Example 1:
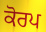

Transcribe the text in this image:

ਕੋਰਪ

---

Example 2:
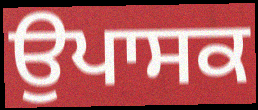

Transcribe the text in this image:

ਉਪਾਸਕ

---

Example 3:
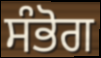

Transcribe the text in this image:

ਸੰਭੋਗ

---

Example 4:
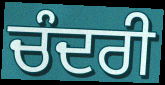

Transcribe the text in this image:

ਚੰਦਰੀ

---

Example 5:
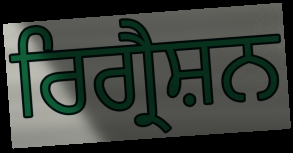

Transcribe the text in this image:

ਰਿਗ੍ਰੈਸ਼ਨ